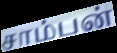
சாம்பன்